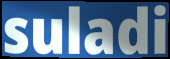
suladi